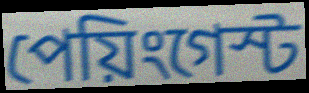
পেয়িংগেস্ট